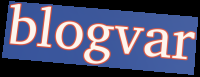
blogvar